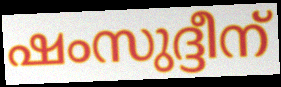
ഷംസുദ്ദീന്